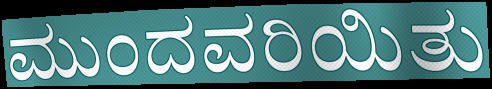
ಮುಂದವರಿಯಿತು